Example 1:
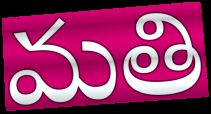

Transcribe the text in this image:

మతి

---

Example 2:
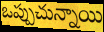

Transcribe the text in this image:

ఒప్పుచున్నాయి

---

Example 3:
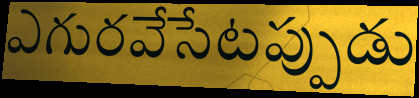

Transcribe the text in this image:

ఎగురవేసేటప్పుడు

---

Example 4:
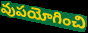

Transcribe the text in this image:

వుపయోగించి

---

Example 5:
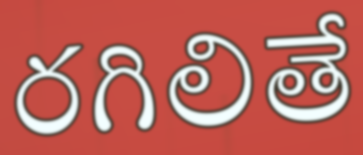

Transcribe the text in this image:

రగిలితే